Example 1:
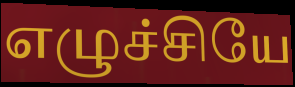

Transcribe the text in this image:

எழுச்சியே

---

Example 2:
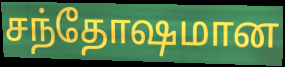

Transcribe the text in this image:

சந்தோஷமான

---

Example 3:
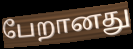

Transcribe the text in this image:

பேறானது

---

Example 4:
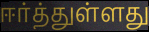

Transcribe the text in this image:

ஈர்த்துள்ளது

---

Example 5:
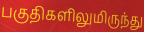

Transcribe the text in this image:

பகுதிகளிலுமிருந்து